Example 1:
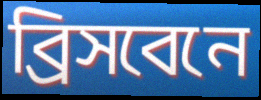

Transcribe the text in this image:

ব্রিসবেনে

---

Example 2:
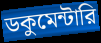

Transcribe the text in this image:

ডকুমেন্টারি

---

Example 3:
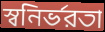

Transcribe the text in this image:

স্বনির্ভরতা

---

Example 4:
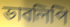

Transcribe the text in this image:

ভাবলিপি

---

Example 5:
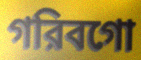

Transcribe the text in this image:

গরিবগো